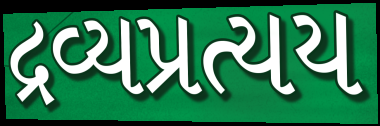
દ્રવ્યપ્રત્યય